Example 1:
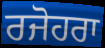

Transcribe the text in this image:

ਰਜੋਹਰਾ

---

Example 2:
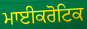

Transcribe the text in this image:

ਮਾਈਕਰੋਟਿਕ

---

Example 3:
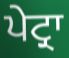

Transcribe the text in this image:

ਪੇਟ੍ਰਾ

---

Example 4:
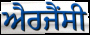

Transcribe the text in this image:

ਐਰਜੈਂਸੀ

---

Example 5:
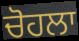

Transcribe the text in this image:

ਚੋਹਲਾ